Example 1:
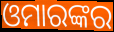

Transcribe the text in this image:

ଓମାରଙ୍କର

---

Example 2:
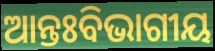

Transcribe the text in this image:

ଆନ୍ତଃବିଭାଗୀୟ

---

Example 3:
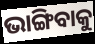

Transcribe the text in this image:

ଭାଙ୍ଗିବାକୁ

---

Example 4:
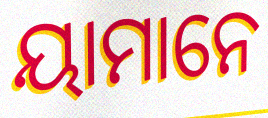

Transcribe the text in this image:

ୟାମାନେ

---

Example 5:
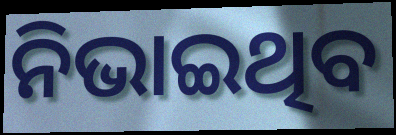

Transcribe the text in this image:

ନିଭାଇଥିବ